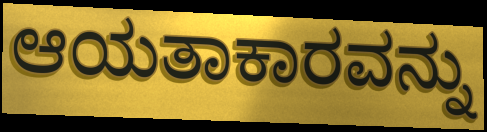
ಆಯತಾಕಾರವನ್ನು